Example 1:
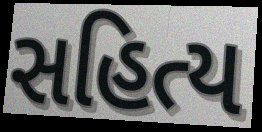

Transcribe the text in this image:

સહિત્ય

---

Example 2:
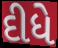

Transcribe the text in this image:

દીધે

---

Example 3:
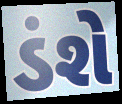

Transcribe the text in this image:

ડંશે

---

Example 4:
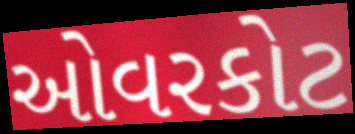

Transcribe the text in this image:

ઓવરકોટ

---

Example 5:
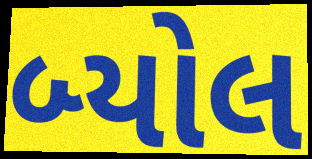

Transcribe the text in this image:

બ્યોલ